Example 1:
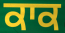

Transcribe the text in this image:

ਕਾਕ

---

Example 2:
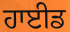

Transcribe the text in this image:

ਹਾਈਡ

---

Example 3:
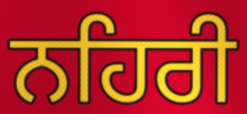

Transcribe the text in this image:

ਨਹਿਰੀ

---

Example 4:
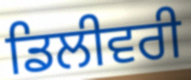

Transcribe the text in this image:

ਡਿਲੀਵਰੀ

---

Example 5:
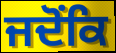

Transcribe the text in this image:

ਜਦੋਂਕਿ